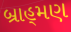
બ્રાહ્‌મણ